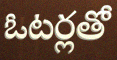
ఓటర్లతో